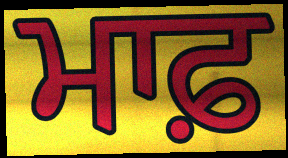
ਮਾਫ਼